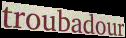
troubadour